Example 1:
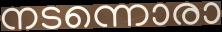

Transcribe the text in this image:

നടന്നൊരാ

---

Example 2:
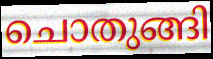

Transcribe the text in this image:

ചൊതുങ്ങി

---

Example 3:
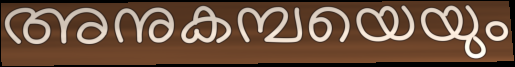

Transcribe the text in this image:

അനുകമ്പയെയും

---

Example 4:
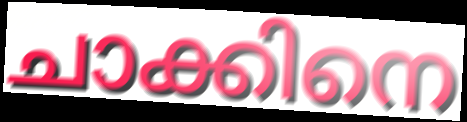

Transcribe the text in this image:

ചാക്കിനെ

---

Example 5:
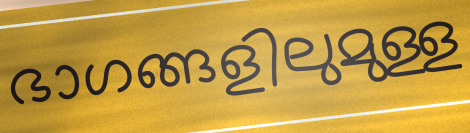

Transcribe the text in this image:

ഭാഗങ്ങളിലുമുള്ള